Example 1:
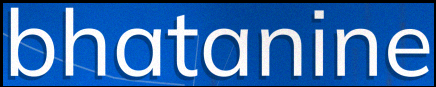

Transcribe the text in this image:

bhatanine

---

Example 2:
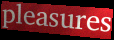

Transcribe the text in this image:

pleasures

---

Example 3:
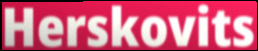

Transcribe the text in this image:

Herskovits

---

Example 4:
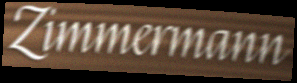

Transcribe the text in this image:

Zimmermann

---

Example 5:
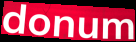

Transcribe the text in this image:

donum